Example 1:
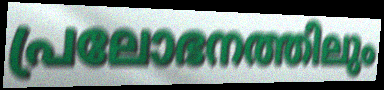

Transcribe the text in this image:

പ്രലോഭനത്തിലും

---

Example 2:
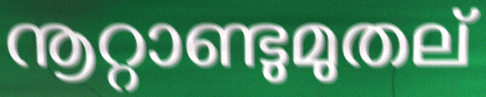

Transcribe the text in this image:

നൂറ്റാണ്ടുമുതല്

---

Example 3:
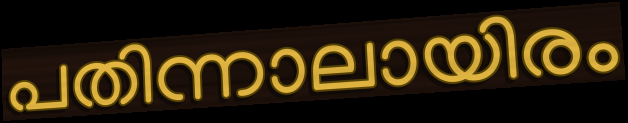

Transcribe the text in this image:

പതിന്നാലായിരം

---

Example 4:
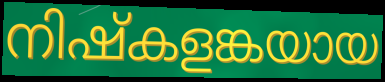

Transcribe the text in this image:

നിഷ്കളങ്കയായ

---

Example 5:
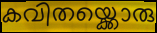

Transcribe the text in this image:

കവിതയ്ക്കൊരു